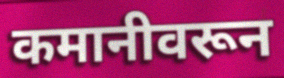
कमानीवरून